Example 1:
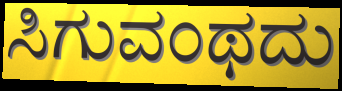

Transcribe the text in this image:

ಸಿಗುವಂಥದು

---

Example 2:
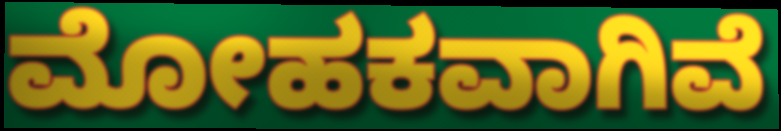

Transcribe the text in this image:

ಮೋಹಕವಾಗಿವೆ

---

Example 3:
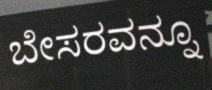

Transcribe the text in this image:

ಬೇಸರವನ್ನೂ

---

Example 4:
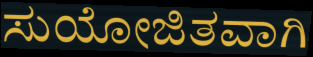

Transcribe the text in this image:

ಸುಯೋಜಿತವಾಗಿ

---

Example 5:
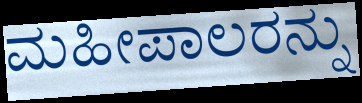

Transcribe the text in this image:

ಮಹೀಪಾಲರನ್ನು